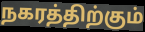
நகரத்திற்கும்